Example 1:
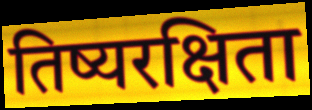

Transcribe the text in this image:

तिष्यरक्षिता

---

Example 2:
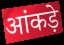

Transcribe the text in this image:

आंकड़े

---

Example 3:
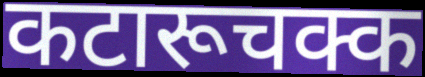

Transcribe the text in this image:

कटारूचक्क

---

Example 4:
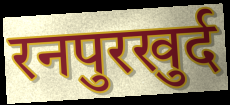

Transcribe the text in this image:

रनपुरखुर्द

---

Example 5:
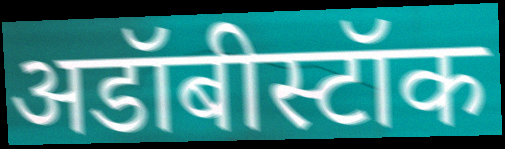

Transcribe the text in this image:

अडॉबीस्टॉक